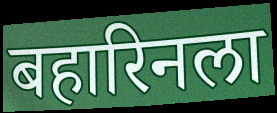
बहारिनला